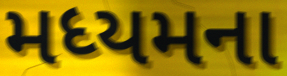
મધ્યમના